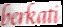
berkati